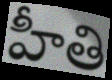
హీతి